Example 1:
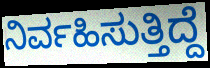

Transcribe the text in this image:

ನಿರ್ವಹಿಸುತ್ತಿದ್ದೆ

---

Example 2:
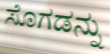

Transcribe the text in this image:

ಸೊಗಡನ್ನು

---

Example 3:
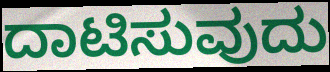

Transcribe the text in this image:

ದಾಟಿಸುವುದು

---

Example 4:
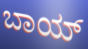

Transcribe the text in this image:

ಬಾಯ್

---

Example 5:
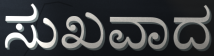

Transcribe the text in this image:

ಸುಖವಾದ